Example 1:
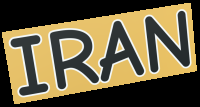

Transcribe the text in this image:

IRAN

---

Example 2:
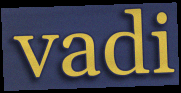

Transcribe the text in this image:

vadi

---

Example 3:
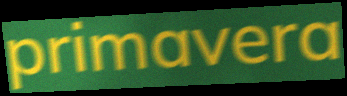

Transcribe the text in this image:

primavera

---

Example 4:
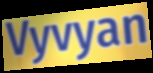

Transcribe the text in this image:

Vyvyan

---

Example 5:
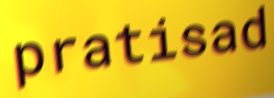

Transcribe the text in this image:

pratisad